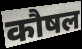
कौषल